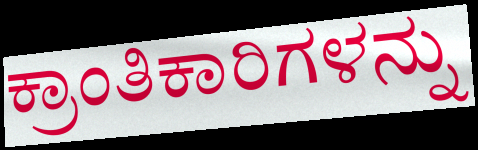
ಕ್ರಾಂತಿಕಾರಿಗಳನ್ನು